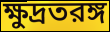
ক্ষুদ্রতরঙ্গ